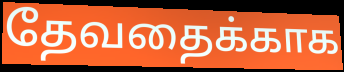
தேவதைக்காக